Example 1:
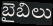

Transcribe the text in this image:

బైబిలు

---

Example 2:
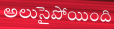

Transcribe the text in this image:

అలుసైపోయింది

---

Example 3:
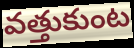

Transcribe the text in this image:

వత్తుకుంట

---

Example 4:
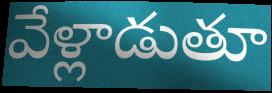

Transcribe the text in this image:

వేళ్లాడుతూ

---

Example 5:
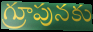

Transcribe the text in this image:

గ్రూపునకు